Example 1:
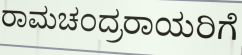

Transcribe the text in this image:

ರಾಮಚಂದ್ರರಾಯರಿಗೆ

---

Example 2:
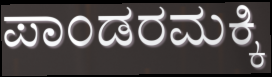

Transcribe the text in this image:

ಪಾಂಡರಮಕ್ಕಿ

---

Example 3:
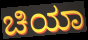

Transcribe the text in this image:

ಚಿಯಾ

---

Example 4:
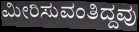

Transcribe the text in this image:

ಮೀರಿಸುವಂತಿದ್ದವು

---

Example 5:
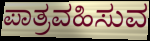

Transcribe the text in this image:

ಪಾತ್ರವಹಿಸುವ